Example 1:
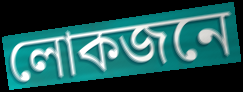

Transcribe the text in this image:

লোকজনে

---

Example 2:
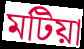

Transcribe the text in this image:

মটিয়া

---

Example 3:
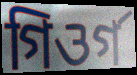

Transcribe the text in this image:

গিওৰ্গ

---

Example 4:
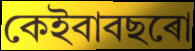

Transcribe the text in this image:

কেইবাবছৰো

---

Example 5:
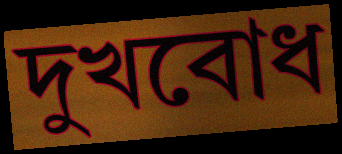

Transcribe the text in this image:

দুখবোধ